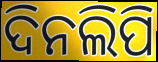
ଦିନଲିପି